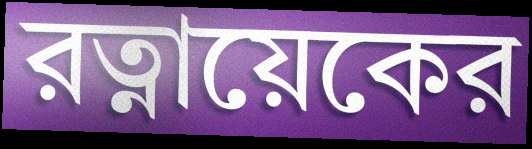
রত্নায়েকের